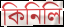
কিনিলি